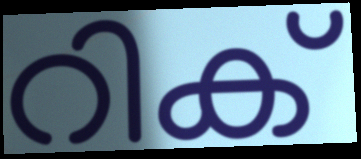
റിക്